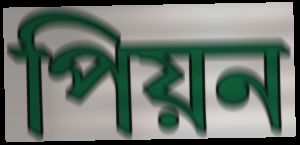
পিয়ন